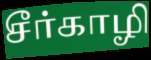
சீர்காழி